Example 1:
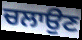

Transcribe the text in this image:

ਚਲਾਉਣ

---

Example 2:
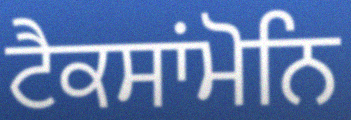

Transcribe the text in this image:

ਟੈਕਸਾਂਮੋਨਿ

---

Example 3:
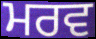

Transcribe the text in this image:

ਮਰਵ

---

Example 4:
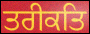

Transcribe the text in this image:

ਤਰੀਕਤਿ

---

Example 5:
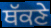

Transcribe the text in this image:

ਥੱਕਣੇ